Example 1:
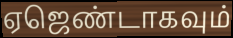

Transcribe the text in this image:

ஏஜெண்டாகவும்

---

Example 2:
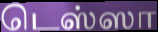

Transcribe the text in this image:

டெஸ்ஸா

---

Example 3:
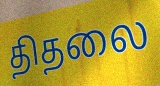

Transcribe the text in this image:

திதலை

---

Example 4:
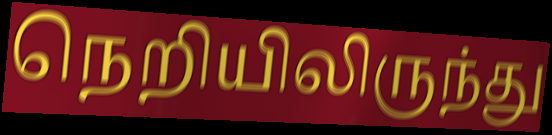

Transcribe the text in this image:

நெறியிலிருந்து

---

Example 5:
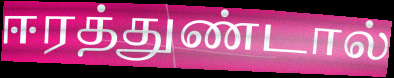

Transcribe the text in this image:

ஈரத்துண்டால்